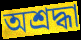
অশ্রদ্ধা